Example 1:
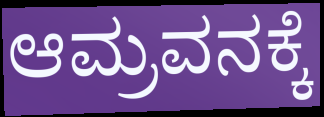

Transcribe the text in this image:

ಆಮ್ರವನಕ್ಕೆ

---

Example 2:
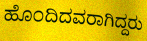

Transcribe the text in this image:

ಹೊಂದಿದವರಾಗಿದ್ದರು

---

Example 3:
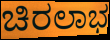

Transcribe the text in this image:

ಚಿರಲಾಭ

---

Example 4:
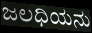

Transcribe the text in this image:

ಜಲಧಿಯನು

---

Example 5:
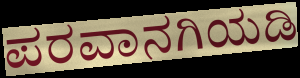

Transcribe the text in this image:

ಪರವಾನಗಿಯಡಿ